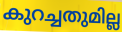
കുറച്ചതുമില്ല